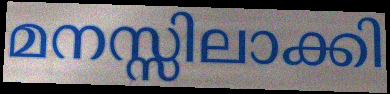
മനസ്സിലാക്കി